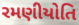
રમણીયોતિ